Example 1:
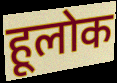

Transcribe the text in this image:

हूलोक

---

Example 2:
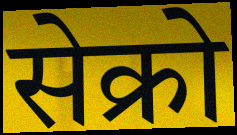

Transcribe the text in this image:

सेक्रो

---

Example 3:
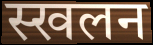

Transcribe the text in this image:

स्‍खलन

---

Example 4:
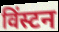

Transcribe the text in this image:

विंस्टन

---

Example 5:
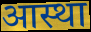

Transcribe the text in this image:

आस्‍था